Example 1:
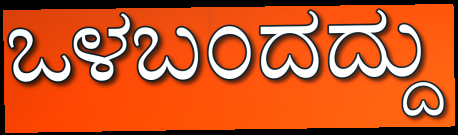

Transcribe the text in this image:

ಒಳಬಂದದ್ದು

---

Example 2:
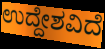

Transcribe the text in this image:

ಉದ್ದೇಶವಿದೆ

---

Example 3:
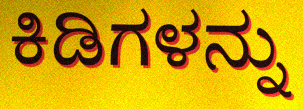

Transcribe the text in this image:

ಕಿಡಿಗಳನ್ನು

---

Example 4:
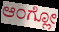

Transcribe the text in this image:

ಆಂಗ್ಲೋ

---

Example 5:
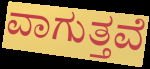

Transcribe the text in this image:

ವಾಗುತ್ತವೆ